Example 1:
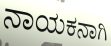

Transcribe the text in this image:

ನಾಯಕನಾಗಿ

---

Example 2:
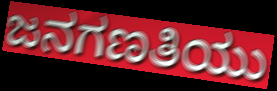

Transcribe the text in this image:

ಜನಗಣತಿಯು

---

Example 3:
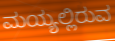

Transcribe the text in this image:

ಮಯ್ಯಲ್ಲಿರುವ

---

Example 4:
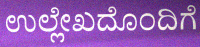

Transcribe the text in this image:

ಉಲ್ಲೇಖದೊಂದಿಗೆ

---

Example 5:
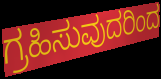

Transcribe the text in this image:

ಗ್ರಹಿಸುವುದರಿಂದ